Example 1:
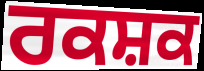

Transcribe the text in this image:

ਰਕਸ਼ਕ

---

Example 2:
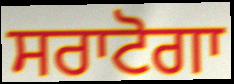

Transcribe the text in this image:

ਸਰਾਟੋਗਾ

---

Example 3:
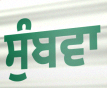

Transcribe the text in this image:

ਸੁੰਬਵਾ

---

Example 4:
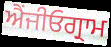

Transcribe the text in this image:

ਐਂਜੀਓਗ੍ਰਾਮ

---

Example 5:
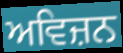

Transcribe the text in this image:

ਅਵਿਜ਼ਨ